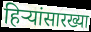
हिऱ्यांसारख्या